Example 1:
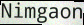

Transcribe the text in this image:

Nimgaon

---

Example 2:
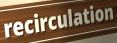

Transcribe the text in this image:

recirculation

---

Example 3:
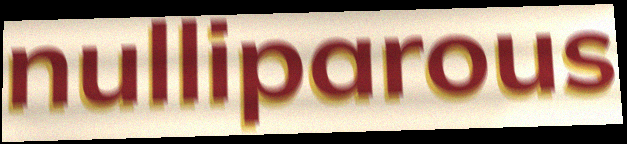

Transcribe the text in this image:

nulliparous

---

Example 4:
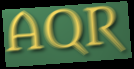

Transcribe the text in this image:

AQR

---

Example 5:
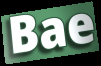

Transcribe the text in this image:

Bae